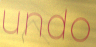
undo